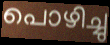
പൊഴിച്ചു